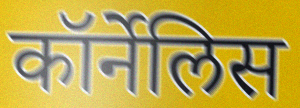
कॉर्नेलिस